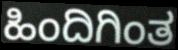
ಹಿಂದಿಗಿಂತ